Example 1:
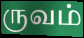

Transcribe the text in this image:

ருவம்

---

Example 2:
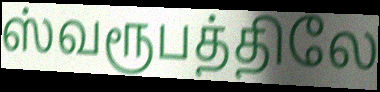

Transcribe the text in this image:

ஸ்வரூபத்திலே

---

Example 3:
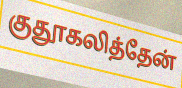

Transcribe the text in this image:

குதூகலித்தேன்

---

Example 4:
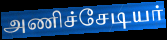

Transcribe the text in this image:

அணிச்சேடியர்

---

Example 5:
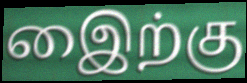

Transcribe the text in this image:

இைற்கு